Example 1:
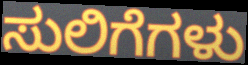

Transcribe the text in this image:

ಸುಲಿಗೆಗಳು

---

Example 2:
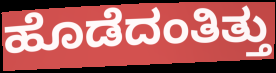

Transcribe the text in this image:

ಹೊಡೆದಂತಿತ್ತು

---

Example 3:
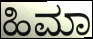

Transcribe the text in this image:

ಹಿಮಾ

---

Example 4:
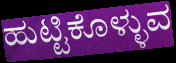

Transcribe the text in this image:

ಹುಟ್ಟಿಕೊಳ್ಳುವ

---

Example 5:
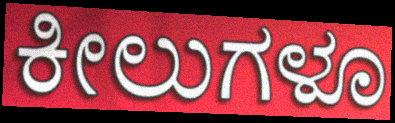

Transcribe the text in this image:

ಕೀಲುಗಳೂ